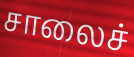
சாலைச்